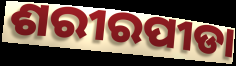
ଶରୀରପୀଡା